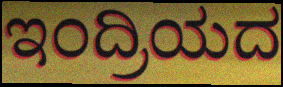
ಇಂದ್ರಿಯದ